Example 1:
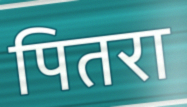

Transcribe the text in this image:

पितरा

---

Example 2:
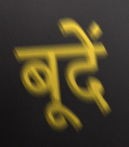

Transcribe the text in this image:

बूदें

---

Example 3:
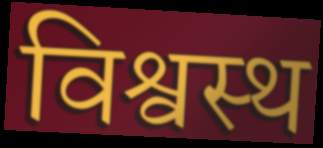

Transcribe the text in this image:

विश्वस्थ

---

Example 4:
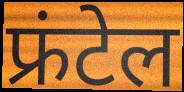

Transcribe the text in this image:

फ्रंटेल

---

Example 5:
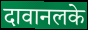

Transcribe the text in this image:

दावानलके